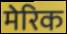
मेरिक